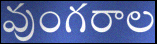
వుంగరాల